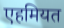
एहमियत